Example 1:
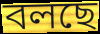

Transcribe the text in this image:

বলছে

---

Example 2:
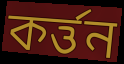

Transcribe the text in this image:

কর্ত্তন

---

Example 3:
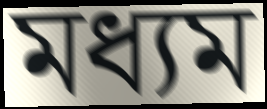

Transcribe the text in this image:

মধ্যম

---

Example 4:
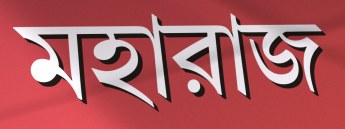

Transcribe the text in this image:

মহারাজ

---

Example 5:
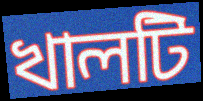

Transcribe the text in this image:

খালটি